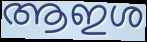
ആഇശ